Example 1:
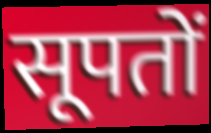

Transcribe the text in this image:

सूपतों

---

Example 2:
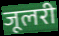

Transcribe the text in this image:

जूलरी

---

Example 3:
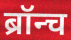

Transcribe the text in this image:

ब्रॉन्च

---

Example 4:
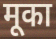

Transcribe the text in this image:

मूका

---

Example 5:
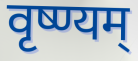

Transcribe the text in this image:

वृष्ण्यम्